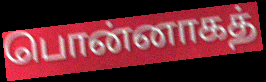
பொன்னாகத்